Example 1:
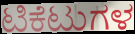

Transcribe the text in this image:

ಟಿಕೆಟುಗಳ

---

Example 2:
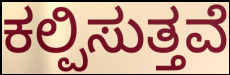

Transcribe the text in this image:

ಕಲ್ಪಿಸುತ್ತವೆ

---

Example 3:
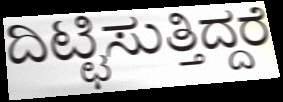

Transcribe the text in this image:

ದಿಟ್ಟಿಸುತ್ತಿದ್ದರೆ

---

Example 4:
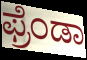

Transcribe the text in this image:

ಫ್ರೆಂಡಾ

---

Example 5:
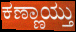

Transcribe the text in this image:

ಕಣ್ಣಾಯ್ತು